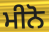
ਮੀਨੋ